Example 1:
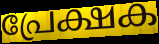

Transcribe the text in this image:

പ്രേക്ഷക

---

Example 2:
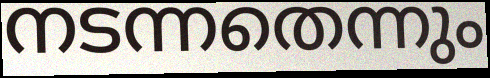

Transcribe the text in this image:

നടന്നതെന്നും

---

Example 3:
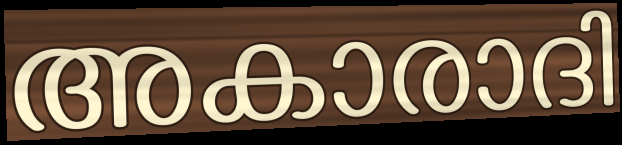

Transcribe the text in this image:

അകാരാദി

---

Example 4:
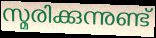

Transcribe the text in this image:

സ്മരിക്കുന്നുണ്ട്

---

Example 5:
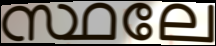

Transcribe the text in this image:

സ്ഥലേ